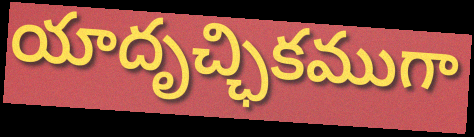
యాదృచ్ఛికముగా